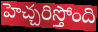
హెచ్చరిస్తోంది